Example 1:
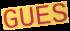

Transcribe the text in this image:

GUES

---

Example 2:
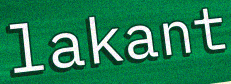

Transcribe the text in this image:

lakant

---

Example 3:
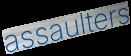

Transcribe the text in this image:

assaulters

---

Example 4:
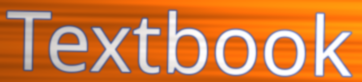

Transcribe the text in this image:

Textbook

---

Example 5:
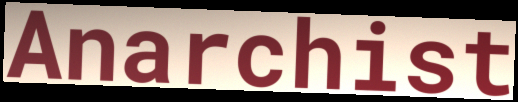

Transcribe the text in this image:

Anarchist